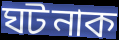
ঘটনাক